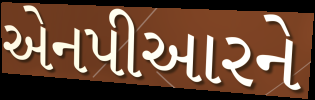
એનપીઆરને